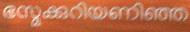
ഭസ്മക്കുറിയണിഞ്ഞ